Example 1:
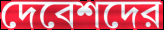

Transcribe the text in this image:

দেবেশদের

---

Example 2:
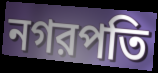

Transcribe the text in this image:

নগরপতি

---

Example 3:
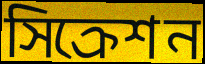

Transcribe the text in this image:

সিক্রেশন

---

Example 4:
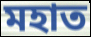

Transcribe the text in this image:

মহাত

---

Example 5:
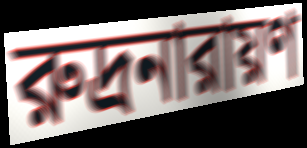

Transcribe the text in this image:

রুদ্রনারায়ণ